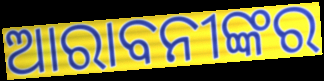
ଆରାବନୀଙ୍କର